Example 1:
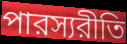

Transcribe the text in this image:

পারস্যরীতি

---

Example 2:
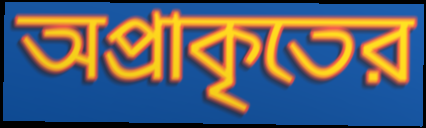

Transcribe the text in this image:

অপ্রাকৃতের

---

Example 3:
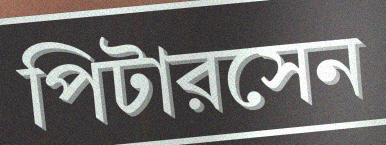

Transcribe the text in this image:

পিটারসেন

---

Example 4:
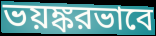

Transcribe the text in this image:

ভয়ঙ্করভাবে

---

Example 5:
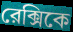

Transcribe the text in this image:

রেক্সিকে